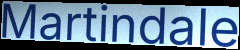
Martindale